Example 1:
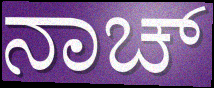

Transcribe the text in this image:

ನಾಚ್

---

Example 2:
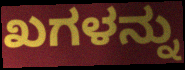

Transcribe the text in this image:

ಖಗಳನ್ನು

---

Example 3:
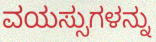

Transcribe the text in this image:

ವಯಸ್ಸುಗಳನ್ನು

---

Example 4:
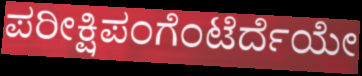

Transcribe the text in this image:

ಪರೀಕ್ಷಿಪಂಗೆಂಟೆರ್ದೆಯೇ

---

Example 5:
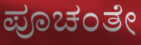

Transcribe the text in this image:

ಪೂಚಂತೇ